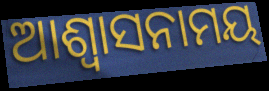
ଆଶ୍ୱାସନାମୟ